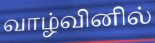
வாழ்வினில்